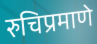
रुचिप्रमाणे